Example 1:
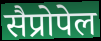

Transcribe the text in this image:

सैप्रोपेल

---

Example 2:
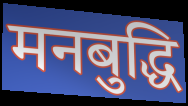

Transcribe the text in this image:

मनबुद्धि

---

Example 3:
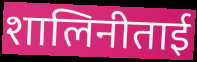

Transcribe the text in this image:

शालिनीताई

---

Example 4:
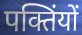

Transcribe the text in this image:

पक्तिंयों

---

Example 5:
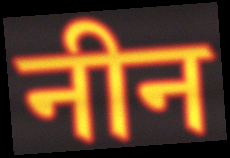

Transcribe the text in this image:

नीन